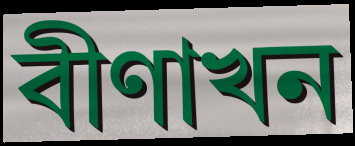
বীণাখন